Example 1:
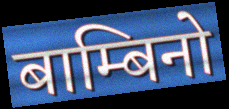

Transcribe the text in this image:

बाम्बिनो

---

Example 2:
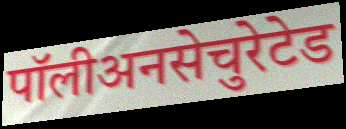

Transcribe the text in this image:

पॉलीअनसेचुरेटेड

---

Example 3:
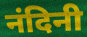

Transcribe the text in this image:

नंदिनी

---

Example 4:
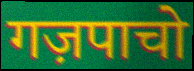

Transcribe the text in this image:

गज़पाचो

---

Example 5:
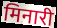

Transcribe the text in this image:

मिनारी